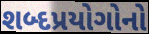
શબ્દપ્રયોગોનો